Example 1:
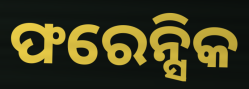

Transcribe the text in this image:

ଫରେନ୍ସିକ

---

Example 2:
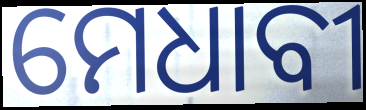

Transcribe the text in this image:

ମେଧାବୀ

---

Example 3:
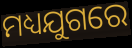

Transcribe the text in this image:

ମଧ୍ୟଯୁଗରେ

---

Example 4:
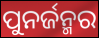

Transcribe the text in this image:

ପୁନର୍ଜନ୍ମର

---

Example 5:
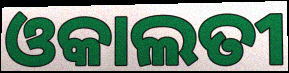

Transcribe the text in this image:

ଓକାଲତୀ